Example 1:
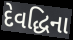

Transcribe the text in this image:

દેવદ્ધિના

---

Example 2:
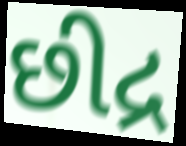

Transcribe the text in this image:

છીદ્ર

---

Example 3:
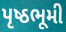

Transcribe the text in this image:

પૃષ્ઠભૂમી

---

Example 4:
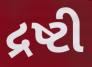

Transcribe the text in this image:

દ્રષ્ટી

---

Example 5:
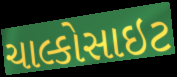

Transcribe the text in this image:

ચાલ્કોસાઇટ